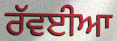
ਰੱਵਈਆ